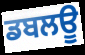
ਡਬਲਊ